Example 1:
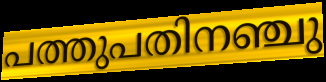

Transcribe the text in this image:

പത്തുപതിനഞ്ചു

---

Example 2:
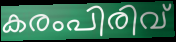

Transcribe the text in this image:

കരംപിരിവ്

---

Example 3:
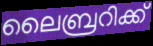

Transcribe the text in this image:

ലൈബ്രറിക്ക്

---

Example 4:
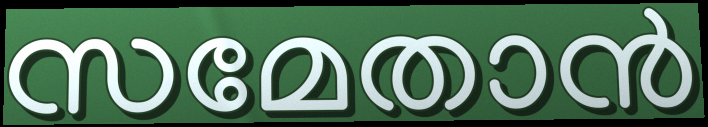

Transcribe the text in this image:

സമേതാൻ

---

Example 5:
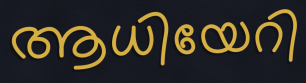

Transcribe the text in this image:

ആധിയേറി